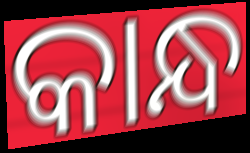
କାନ୍ଧ